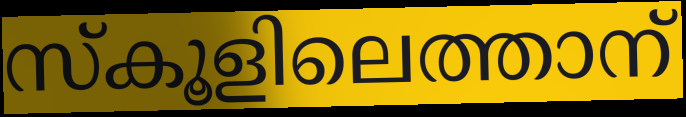
സ്കൂളിലെത്താന്